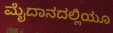
ಮೈದಾನದಲ್ಲಿಯೂ